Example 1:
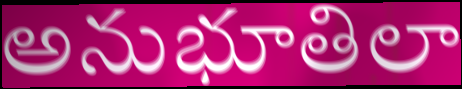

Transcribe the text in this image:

అనుభూతిలా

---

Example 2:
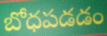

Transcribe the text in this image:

బోధపడడం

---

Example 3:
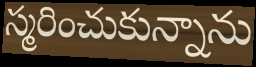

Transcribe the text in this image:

స్మరించుకున్నాను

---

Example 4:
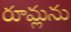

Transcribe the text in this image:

రూమ్లను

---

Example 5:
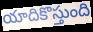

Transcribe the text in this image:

యాదికొస్తుంది